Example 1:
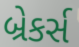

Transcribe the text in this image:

બ્રેકર્સ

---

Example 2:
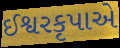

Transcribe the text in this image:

ઈશ્વરકૃપાએ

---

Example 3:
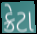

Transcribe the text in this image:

ક્રેટા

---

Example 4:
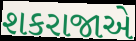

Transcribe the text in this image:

શકરાજાએ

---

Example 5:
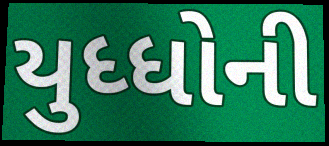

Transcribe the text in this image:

યુધ્ધોની